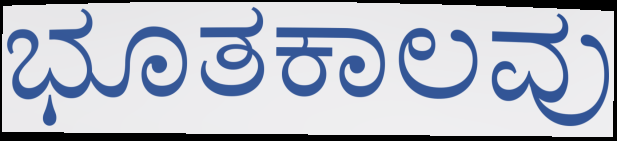
ಭೂತಕಾಲವು